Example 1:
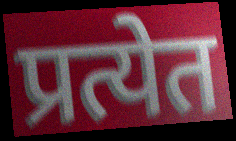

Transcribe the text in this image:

प्रत्येत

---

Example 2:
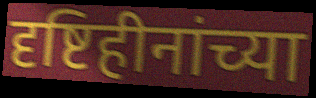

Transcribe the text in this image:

दृष्टिहीनांच्या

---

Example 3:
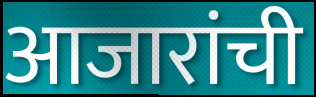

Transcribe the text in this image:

आजारांची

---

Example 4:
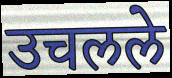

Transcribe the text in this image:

उचलले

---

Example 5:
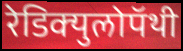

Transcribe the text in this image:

रेडिक्युलोपॅथी